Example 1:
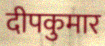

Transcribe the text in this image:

दीपकुमार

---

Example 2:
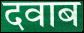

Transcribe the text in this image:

दवाब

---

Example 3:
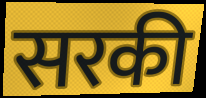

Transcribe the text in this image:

सरकी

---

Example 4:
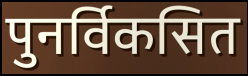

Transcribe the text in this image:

पुनर्विकसित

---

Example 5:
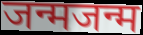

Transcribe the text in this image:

जन्मजन्म